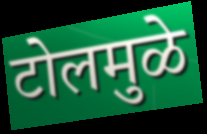
टोलमुळे